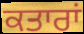
ਕਤਾਰਾਂ